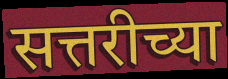
सत्तरीच्या